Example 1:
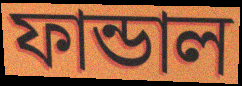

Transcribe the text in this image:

ফান্ডাল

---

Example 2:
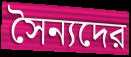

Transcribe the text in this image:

সৈন্যদের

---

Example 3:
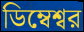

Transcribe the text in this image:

ডিম্বেশ্বর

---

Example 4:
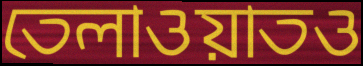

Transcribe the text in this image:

তেলাওয়াতও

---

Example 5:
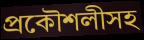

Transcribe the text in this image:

প্রকৌশলীসহ